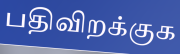
பதிவிறக்குக